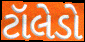
ટૉલેડો